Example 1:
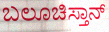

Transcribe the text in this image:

ಬಲೂಚಿಸ್ತಾನ್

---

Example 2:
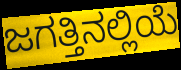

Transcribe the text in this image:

ಜಗತ್ತಿನಲ್ಲಿಯೆ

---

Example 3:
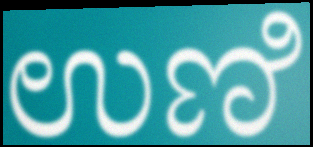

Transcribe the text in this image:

ಉಣಿ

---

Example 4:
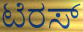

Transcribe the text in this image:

ಟೆರಸ್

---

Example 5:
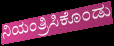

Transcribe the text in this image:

ನಿಯಂತ್ರಿಸಿಕೊಂಡು